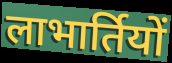
लाभार्तियों